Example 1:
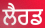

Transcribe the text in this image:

ਲੈਰਡ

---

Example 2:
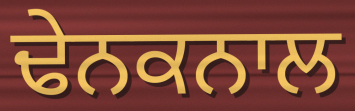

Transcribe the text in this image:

ਢੇਨਕਨਾਲ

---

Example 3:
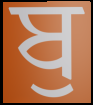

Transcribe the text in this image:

ਬੁ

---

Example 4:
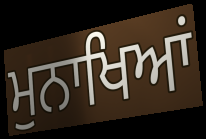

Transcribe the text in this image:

ਮੁਨਾਖਿਆਂ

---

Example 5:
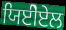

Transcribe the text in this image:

ਯਿਈੇਏਲ